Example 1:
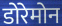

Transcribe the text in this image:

डोरेमोन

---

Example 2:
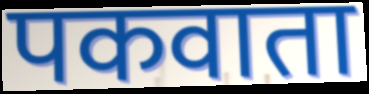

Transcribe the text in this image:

पकवाता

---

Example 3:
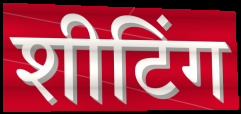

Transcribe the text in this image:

शीटिंग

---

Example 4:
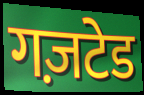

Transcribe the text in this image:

गज़टेड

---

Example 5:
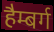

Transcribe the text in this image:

हैम्बर्ग